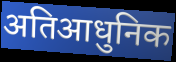
अतिआधुनिक